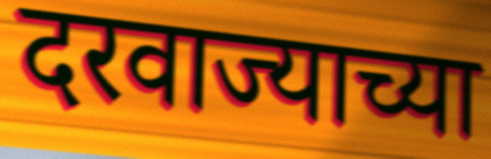
दरवाज्याच्या